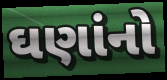
ઘણાંનો